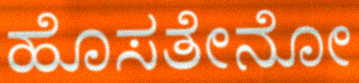
ಹೊಸತೇನೋ